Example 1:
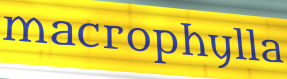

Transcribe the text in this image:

macrophylla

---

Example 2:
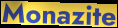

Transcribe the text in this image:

Monazite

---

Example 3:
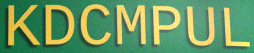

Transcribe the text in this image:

KDCMPUL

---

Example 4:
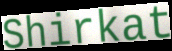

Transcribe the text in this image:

Shirkat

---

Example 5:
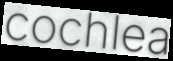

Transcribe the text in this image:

cochlea